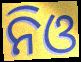
ନିଓ